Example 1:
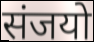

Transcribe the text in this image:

संजयो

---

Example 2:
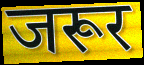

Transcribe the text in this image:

जरूर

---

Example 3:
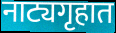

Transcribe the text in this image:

नाट्यगृहात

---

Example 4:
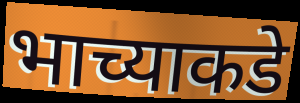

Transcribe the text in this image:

भाच्याकडे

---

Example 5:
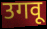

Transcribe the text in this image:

उगवू